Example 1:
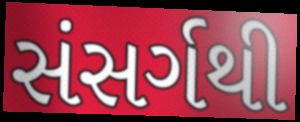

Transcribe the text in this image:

સંસર્ગથી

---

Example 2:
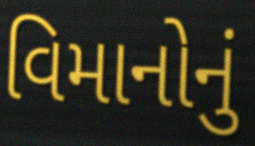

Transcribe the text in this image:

વિમાનોનું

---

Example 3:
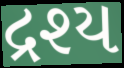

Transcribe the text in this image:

દ્રશ્ય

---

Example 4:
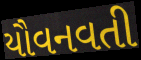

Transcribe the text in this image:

યૌવનવતી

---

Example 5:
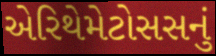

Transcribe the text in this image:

એરિથેમેટોસસનું